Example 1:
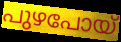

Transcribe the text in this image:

പുഴപോയ്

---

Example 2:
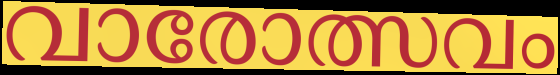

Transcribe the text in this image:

വാരോത്സവം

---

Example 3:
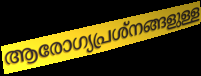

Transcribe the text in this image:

ആരോഗ്യപ്രശ്നങ്ങളുള്ള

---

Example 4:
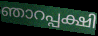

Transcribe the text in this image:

ഞാറപ്പക്ഷി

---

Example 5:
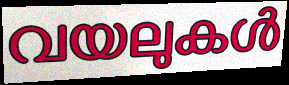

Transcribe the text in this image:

വയലുകൾ